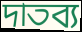
দাতব্য